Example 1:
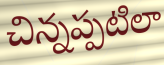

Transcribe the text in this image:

చిన్నప్పటిలా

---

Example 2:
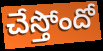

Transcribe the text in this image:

చేస్తోందో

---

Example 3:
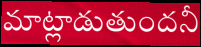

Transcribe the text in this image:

మాట్లాడుతుందనీ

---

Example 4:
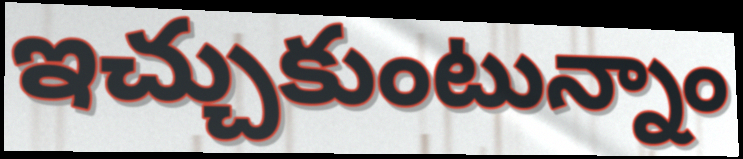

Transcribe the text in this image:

ఇచ్చుకుంటున్నాం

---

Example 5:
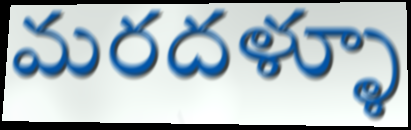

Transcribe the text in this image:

మరదళ్ళూ